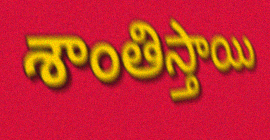
శాంతిస్తాయి